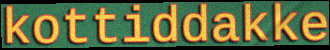
kottiddakke